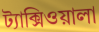
ট্যাক্সিওয়ালা